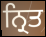
ਨ੍ਰਿਤ